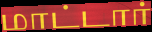
மாட்டார்